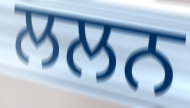
ਲਲਨ